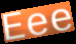
Eee